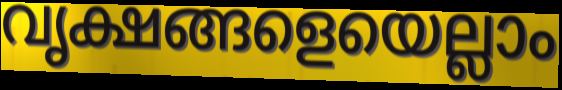
വൃക്ഷങ്ങളെയെല്ലാം